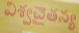
విశ్వచైతన్య